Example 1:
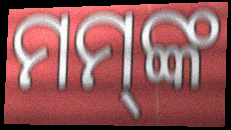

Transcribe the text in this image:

ମମ୍‍ଙ୍କ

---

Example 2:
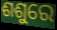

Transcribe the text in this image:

ଶଶୁରେ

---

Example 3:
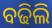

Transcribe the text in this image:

ବଢିଲି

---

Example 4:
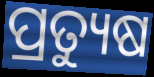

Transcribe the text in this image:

ପ୍ରତ୍ୟୁଷ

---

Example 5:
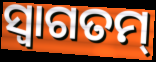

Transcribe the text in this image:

ସ୍ୱାଗତମ୍